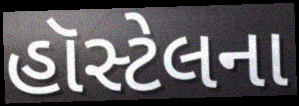
હૉસ્ટેલના